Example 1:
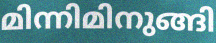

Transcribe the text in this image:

മിന്നിമിനുങ്ങി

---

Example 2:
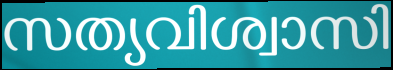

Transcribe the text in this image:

സത്യവിശ്വാസി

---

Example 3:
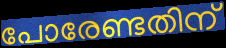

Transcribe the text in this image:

പോരേണ്ടതിന്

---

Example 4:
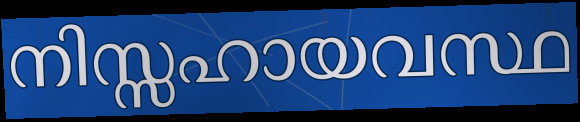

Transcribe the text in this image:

നിസ്സഹായവസ്ഥ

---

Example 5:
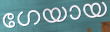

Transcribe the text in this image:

ഗേയായ